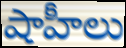
షాహీలు